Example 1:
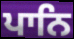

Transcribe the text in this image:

ਪਾਨਿ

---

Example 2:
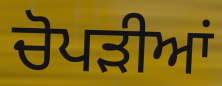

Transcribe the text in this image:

ਚੋਪੜੀਆਂ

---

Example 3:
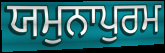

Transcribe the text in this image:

ਯਮੁਨਾਪੁਰਮ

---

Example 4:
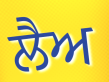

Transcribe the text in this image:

ਲੈਅ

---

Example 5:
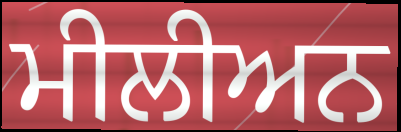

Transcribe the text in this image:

ਮੀਲੀਅਨ